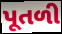
પૂતળી